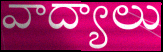
వాద్యాలు